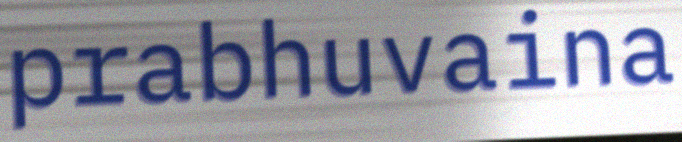
prabhuvaina